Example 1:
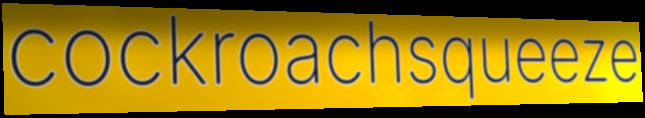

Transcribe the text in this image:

cockroachsqueeze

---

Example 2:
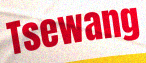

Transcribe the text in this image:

Tsewang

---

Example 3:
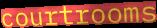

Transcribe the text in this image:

courtrooms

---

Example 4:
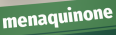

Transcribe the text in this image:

menaquinone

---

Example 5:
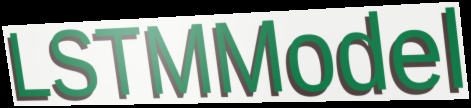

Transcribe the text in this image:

LSTMModel